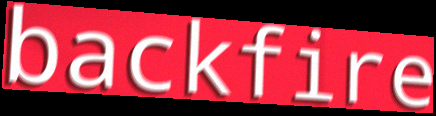
backfire